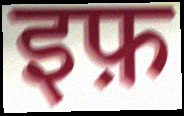
इफ़